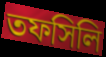
তফসিলি